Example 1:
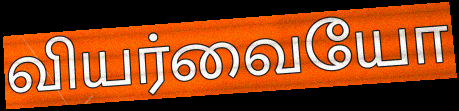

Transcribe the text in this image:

வியர்வையோ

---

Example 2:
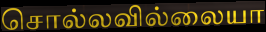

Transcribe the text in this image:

சொல்லவில்லையா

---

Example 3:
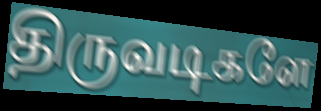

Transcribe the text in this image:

திருவடிகளே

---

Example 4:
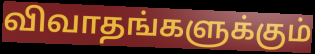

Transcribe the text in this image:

விவாதங்களுக்கும்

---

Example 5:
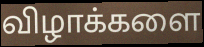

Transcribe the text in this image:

விழாக்களை